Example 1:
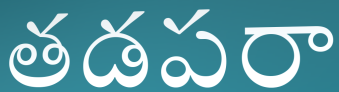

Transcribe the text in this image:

తడపరా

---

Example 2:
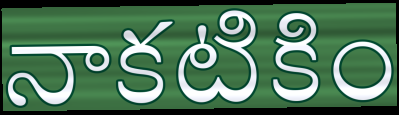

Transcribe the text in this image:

నాకటికిం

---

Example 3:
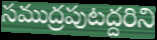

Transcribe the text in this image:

సముద్రపుటద్దరిని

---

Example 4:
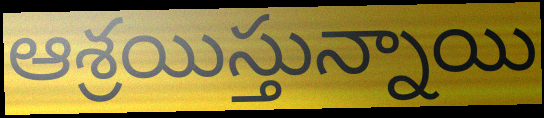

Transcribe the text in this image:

ఆశ్రయిస్తున్నాయి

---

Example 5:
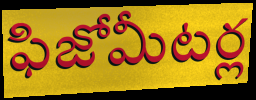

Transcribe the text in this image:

ఫిజోమీటర్ల